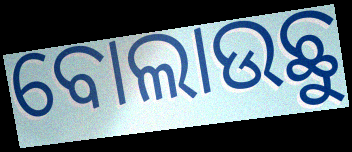
ବୋଲାଉଛୁ